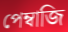
পেম্বাজি